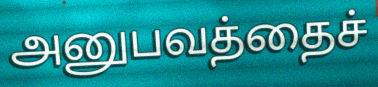
அனுபவத்தைச்